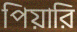
পিয়ারি